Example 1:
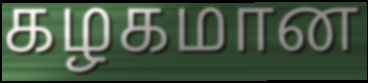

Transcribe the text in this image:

கழகமான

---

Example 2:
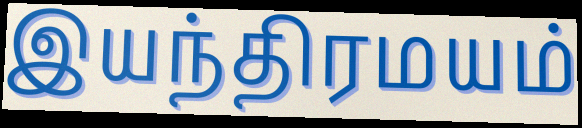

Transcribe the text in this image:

இயந்திரமயம்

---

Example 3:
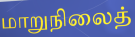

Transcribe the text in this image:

மாறுநிலைத்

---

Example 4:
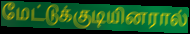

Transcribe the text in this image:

மேட்டுக்குடியினரால்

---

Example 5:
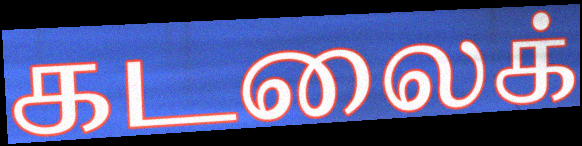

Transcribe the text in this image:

கடலைக்